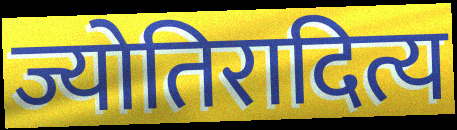
ज्योतिरादित्य